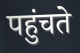
पहुंचते